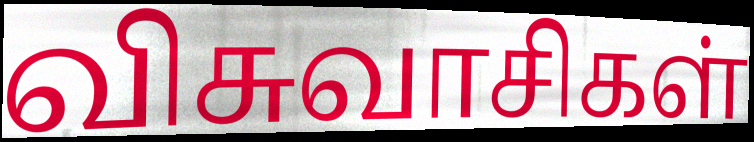
விசுவாசிகள்